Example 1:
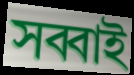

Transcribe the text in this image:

সব্বাই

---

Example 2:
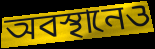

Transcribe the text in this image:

অবস্থানেও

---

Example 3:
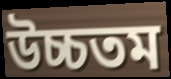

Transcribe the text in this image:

উচ্চতম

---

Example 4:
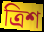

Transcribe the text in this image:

ত্রিশ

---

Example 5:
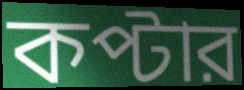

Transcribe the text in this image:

কপ্টার